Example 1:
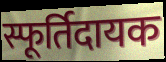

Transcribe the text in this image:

स्फूर्तिदायक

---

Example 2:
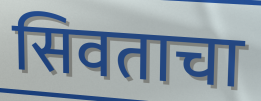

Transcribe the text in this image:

सिवताचा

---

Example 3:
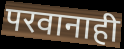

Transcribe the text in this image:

परवानाही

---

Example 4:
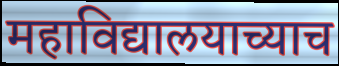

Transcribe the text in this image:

महाविद्यालयाच्याच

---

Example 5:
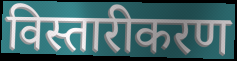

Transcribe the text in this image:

विस्तारीकरण